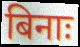
बिनाः